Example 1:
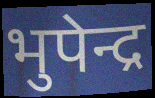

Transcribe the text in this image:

भुपेन्द्र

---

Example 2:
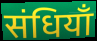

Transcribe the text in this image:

संधियाँ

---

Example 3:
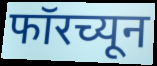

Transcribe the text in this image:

फॉरच्यून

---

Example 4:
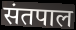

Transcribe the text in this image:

संतपाल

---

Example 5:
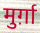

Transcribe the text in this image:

मुर्ग़ा